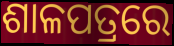
ଶାଳପତ୍ରରେ